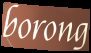
borong